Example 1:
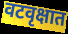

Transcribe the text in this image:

वटवृक्षात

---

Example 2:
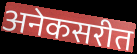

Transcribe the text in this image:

अनेकसरीत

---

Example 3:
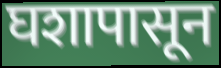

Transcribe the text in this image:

घशापासून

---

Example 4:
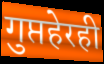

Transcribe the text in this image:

गुप्तहेरही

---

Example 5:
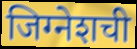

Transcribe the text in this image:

जिग्नेशची